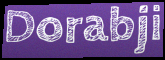
Dorabji